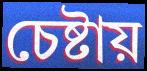
চেষ্টায়